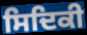
ਸਿਦਿਕੀ